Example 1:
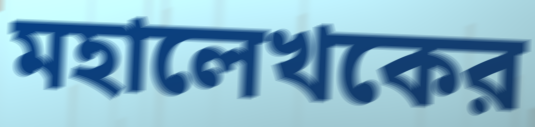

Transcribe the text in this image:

মহালেখকের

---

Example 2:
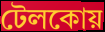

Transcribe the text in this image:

টেলকোয়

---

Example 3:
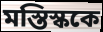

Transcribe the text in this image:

মস্তিস্ককে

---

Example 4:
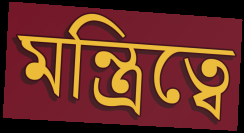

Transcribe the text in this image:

মন্ত্রিত্বে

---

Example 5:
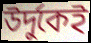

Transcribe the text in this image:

উর্দুকেই